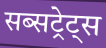
सब्सट्रेट्स